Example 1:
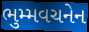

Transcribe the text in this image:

ભુમ્મવચનેન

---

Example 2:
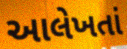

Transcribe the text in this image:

આલેખતાં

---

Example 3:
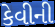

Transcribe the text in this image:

કેવીની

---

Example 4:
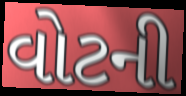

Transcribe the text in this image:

વોટની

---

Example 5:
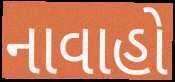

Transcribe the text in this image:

નાવાહો